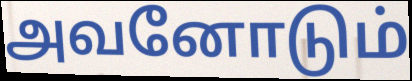
அவனோடும்